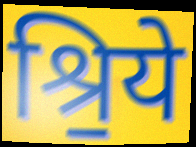
श्रि॒ये